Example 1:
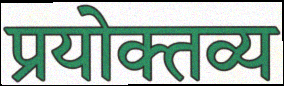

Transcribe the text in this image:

प्रयोक्तव्य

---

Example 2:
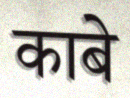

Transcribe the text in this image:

काबे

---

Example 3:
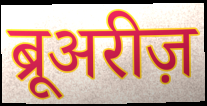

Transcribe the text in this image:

ब्रूअरीज़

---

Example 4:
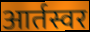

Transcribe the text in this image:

आर्तस्वर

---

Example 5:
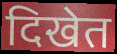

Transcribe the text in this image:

दिखेत